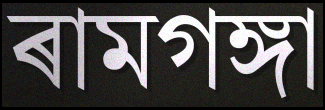
ৰামগঙ্গা